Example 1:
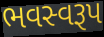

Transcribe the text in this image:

ભવસ્વરૂપ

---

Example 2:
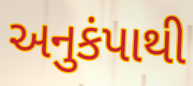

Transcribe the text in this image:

અનુકંપાથી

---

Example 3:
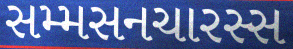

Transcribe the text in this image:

સમ્મસનચારસ્સ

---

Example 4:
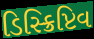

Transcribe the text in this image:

ડિસ્ક્રિપ્ટિવ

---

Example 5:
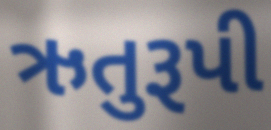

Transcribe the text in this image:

ઋતુરૂપી